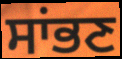
ਸਾਂਭਣ